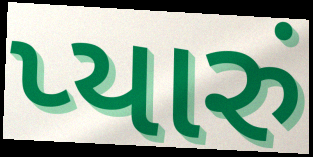
પ્યારું